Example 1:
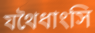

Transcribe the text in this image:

যথৈধাংসি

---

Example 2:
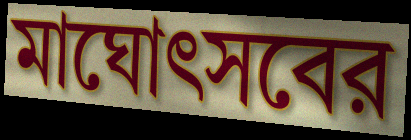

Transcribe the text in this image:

মাঘোৎসবের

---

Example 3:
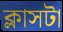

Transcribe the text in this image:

ক্লাসটা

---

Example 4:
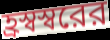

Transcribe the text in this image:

হ্রস্বস্বরের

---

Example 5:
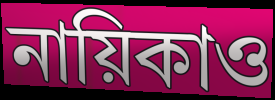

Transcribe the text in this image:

নায়িকাও